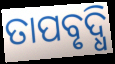
ତାପବୃଦ୍ଧି